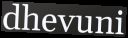
dhevuni